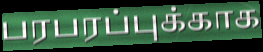
பரபரப்புக்காக